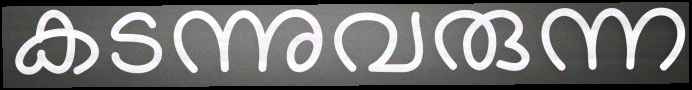
കടന്നുവരുന്ന